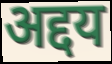
अद्दय